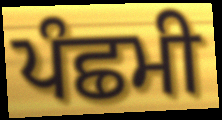
ਪੰਛਮੀ